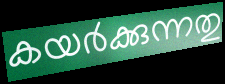
കയർക്കുന്നതു